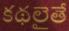
కథలైతే